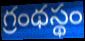
గ్రంథస్థం